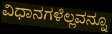
ವಿಧಾನಗಳೆಲ್ಲವನ್ನೂ